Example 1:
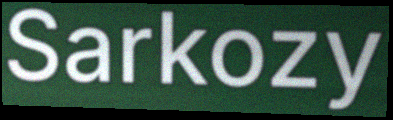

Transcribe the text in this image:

Sarkozy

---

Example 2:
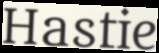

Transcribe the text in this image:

Hastie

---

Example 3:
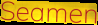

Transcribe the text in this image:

Seamen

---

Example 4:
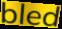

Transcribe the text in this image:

bled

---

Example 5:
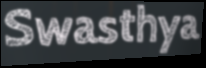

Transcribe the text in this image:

Swasthya